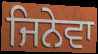
ਜਿਨੇਵਾ